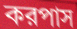
করপাস